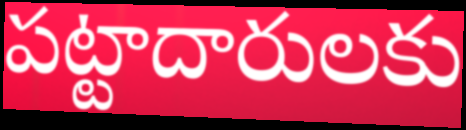
పట్టాదారులకు